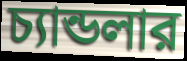
চ্যান্ডলার